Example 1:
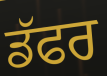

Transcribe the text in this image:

ਡੱਫਰ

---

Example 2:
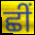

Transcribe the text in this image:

ਛੀਂ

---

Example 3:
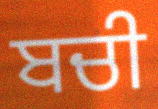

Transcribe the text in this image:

ਬਚੀ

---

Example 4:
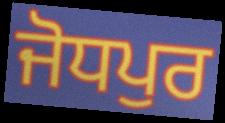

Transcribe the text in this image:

ਜੋਧਪੁਰ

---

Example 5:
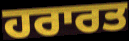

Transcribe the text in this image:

ਹਰਾਰਤ